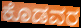
ಕೊಡವರ